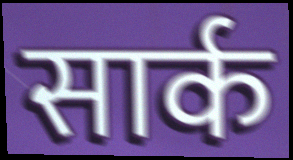
सार्क